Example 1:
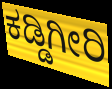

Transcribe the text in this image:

ಕಡ್ಡಿಗೀರಿ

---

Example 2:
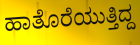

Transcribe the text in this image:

ಹಾತೊರೆಯುತ್ತಿದ್ದ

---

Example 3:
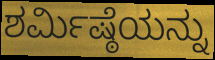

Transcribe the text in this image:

ಶರ್ಮಿಷ್ಠೆಯನ್ನು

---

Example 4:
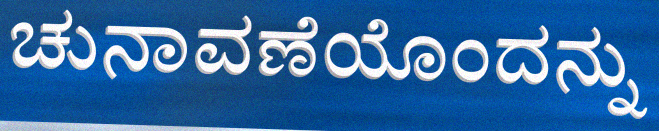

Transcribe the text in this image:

ಚುನಾವಣೆಯೊಂದನ್ನು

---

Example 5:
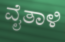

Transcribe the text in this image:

ವೈತಾಳಿ